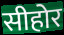
सीहोर